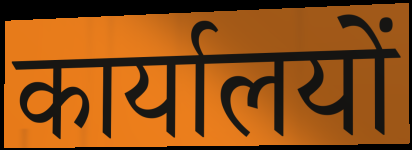
कार्यालयों